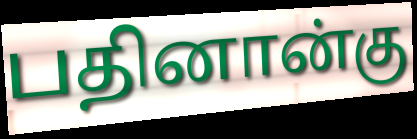
பதினான்கு